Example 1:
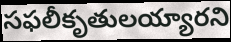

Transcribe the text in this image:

సఫలీకృతులయ్యారని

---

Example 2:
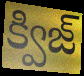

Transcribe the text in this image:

క్విజ్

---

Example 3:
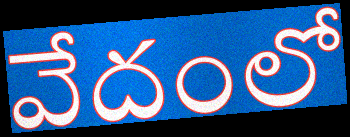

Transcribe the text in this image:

వేదంలో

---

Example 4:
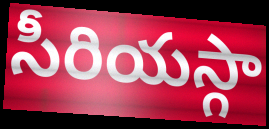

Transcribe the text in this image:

సీరియస్గా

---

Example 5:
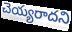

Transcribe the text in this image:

చెయ్యరాదని